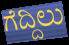
ಗೆದ್ದಿಲು